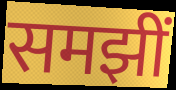
समझीं